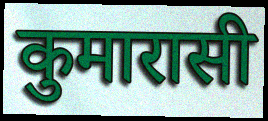
कुमारासी